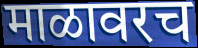
माळावरच